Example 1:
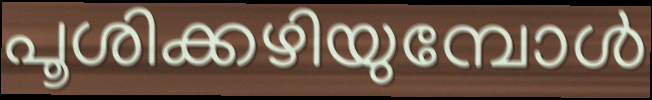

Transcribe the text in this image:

പൂശിക്കഴിയുമ്പോൾ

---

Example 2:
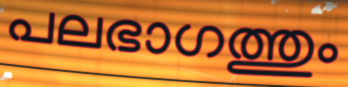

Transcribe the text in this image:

പലഭാഗത്തും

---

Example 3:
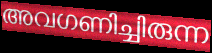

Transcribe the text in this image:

അവഗണിച്ചിരുന്ന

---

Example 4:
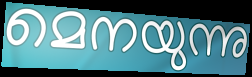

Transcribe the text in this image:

മെനയുന്നു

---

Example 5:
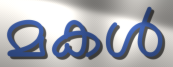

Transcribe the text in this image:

മകൾ